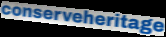
conserveheritage